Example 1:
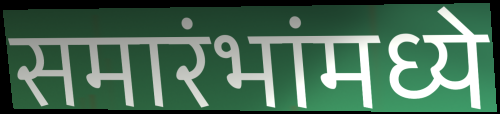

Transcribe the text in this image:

समारंभांमध्ये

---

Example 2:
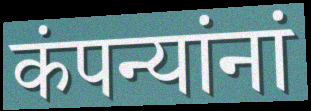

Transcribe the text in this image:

कंपन्यांनां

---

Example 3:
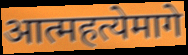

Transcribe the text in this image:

आत्महत्येमागे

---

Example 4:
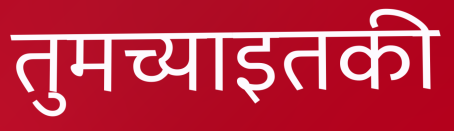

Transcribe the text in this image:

तुमच्याइतकी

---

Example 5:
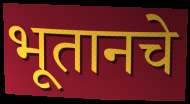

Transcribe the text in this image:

भूतानचे